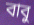
বাবু